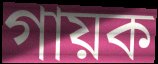
গায়ক